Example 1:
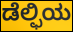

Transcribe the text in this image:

ಡೆಲ್ಫಿಯ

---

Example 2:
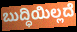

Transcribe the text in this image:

ಬುದ್ಧಿಯಿಲ್ಲದೆ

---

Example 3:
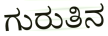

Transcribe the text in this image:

ಗುರುತಿನ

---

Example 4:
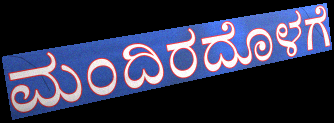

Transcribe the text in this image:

ಮಂದಿರದೊಳಗೆ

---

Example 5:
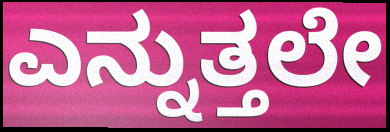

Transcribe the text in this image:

ಎನ್ನುತ್ತಲೇ